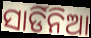
ସାର୍ଡିନିଆ